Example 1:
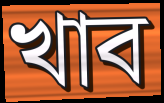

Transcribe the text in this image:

খাব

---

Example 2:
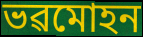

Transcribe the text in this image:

ভৱমোহন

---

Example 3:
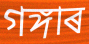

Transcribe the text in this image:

গঙ্গাৰ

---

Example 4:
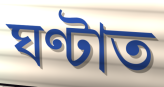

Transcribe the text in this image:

ঘণ্টাত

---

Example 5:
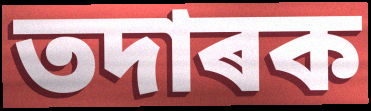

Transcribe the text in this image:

তদাৰক